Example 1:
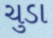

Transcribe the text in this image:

ચુડા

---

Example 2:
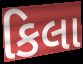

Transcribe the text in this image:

કિલા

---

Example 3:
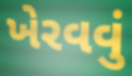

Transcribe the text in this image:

ખેરવવું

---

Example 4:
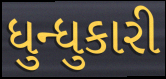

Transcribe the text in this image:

ધુન્ધુકારી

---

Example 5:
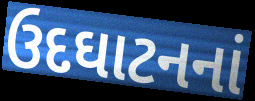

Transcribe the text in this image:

ઉદઘાટનનાં